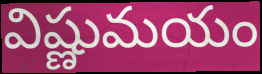
విష్ణుమయం